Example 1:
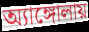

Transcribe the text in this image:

অ্যাঙ্গোলায়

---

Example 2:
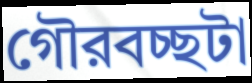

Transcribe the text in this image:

গৌরবচ্ছটা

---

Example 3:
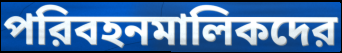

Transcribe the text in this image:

পরিবহনমালিকদের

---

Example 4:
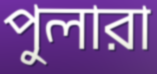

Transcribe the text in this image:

পুলারা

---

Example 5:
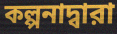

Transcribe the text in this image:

কল্পনাদ্বারা